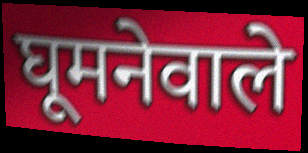
घूमनेवाले